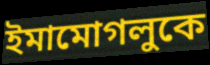
ইমামোগলুকে